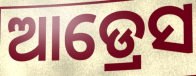
ଆଡ୍ରେସ